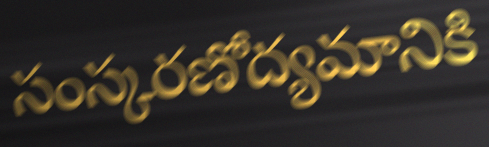
సంస్కరణోద్యమానికి